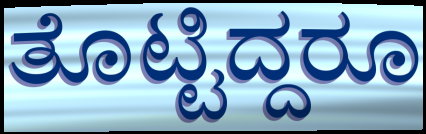
ತೊಟ್ಟಿದ್ದರೂ